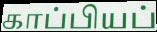
காப்பியப்